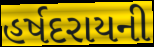
હર્ષદરાયની